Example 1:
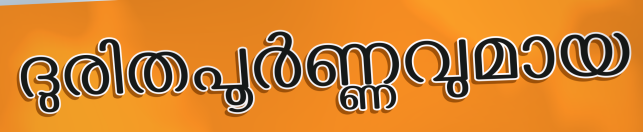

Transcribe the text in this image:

ദുരിതപൂർണ്ണവുമായ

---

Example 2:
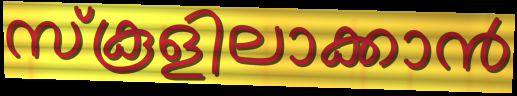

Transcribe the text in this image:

സ്കൂളിലാക്കാൻ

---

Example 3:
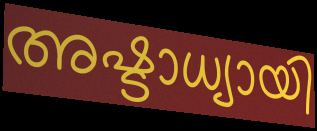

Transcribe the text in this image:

അഷ്ടാധ്യായി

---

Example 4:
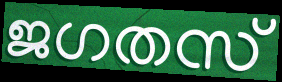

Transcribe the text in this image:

ജഗതസ്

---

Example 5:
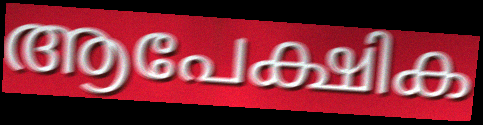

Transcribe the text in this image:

ആപേക്ഷിക